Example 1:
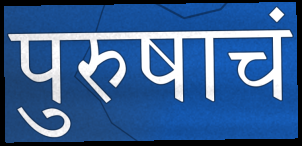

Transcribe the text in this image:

पुरुषाचं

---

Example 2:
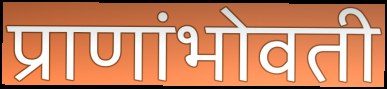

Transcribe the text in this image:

प्राणांभोवती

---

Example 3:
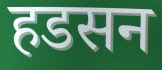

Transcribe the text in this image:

हडसन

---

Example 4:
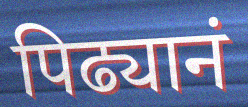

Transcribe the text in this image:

पिढ्यानं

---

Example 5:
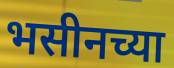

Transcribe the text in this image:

भसीनच्या